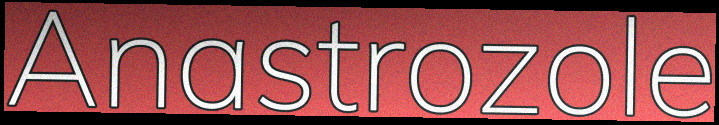
Anastrozole